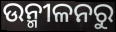
ଉନ୍ମୀଳନରୁ